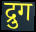
द्रुग